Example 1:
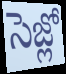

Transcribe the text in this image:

సెజ్లో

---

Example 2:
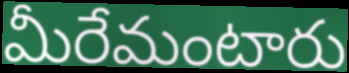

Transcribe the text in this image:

మీరేమంటారు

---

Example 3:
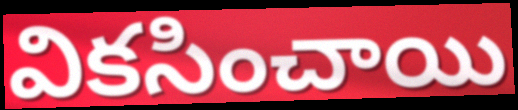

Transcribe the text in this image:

వికసించాయి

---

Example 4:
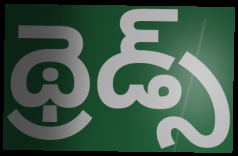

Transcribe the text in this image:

థ్రెడ్స్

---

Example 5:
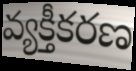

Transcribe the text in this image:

వ్యక్తీకరణ